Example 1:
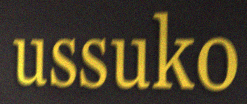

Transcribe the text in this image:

ussuko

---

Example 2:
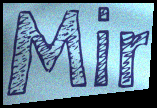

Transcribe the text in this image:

Mir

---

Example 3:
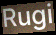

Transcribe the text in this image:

Rugi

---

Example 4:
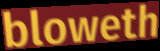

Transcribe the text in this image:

bloweth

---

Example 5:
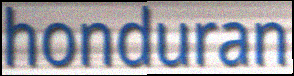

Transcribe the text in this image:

honduran